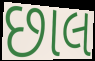
છાલ